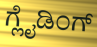
ಗ್ಲೈಡಿಂಗ್